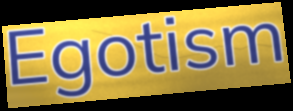
Egotism